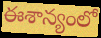
ఈశాన్యంలో